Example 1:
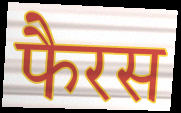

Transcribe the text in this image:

फैरस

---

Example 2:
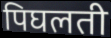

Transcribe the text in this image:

पिघलती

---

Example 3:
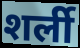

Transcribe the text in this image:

शर्ली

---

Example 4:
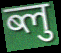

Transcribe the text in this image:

ब्लु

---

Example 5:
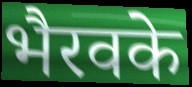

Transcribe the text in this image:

भैरवके